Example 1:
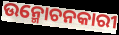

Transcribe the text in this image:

ଉନ୍ମୋଚନକାରୀ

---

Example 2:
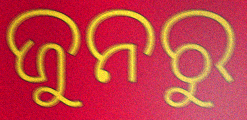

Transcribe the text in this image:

ଜୁନରୁ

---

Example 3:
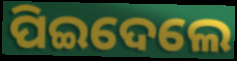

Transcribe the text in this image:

ପିଇଦେଲେ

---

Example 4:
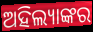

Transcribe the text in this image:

ଅହିଲ୍ୟାଙ୍କର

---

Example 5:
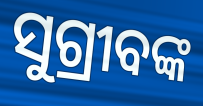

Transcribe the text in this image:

ସୁଗ୍ରୀବଙ୍କ